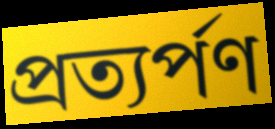
প্ৰত্যৰ্পণ